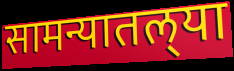
सामन्यातल्या